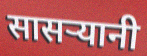
सासऱ्यानी